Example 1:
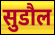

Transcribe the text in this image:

सुडौल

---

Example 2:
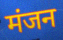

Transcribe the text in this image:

मंजन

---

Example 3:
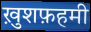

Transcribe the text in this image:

ख़ुशफ़हमी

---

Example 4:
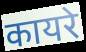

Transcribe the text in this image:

कायरे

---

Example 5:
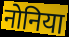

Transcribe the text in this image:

नोनिया